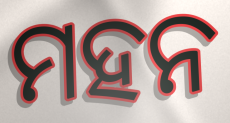
ମହନ